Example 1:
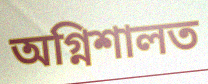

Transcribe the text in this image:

অগ্নিশালত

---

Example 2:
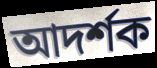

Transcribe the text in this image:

আদৰ্শক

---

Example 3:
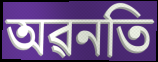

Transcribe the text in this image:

অৱনতি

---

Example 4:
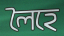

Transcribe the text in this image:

লৈহে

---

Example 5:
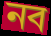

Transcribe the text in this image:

নব